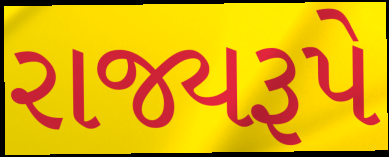
રાજ્યરૂપે